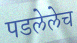
पडलेलेच